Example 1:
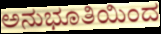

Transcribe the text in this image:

ಅನುಭೂತಿಯಿಂದ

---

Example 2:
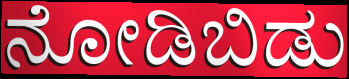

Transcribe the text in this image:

ನೋಡಿಬಿಡು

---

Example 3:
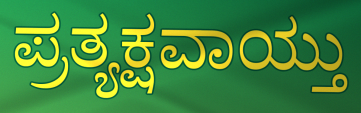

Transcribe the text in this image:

ಪ್ರತ್ಯಕ್ಷವಾಯ್ತು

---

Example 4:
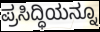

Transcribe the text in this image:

ಪ್ರಸಿದ್ಧಿಯನ್ನೂ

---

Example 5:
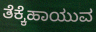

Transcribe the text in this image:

ತೆಕ್ಕೆಹಾಯುವ